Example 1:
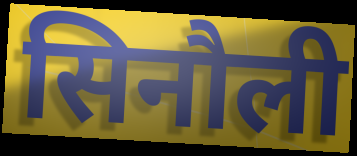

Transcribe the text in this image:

सिनौली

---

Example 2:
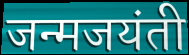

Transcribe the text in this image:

जन्मजयंती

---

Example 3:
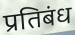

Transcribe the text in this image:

प्रतिबंध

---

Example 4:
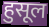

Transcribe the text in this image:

हुसूल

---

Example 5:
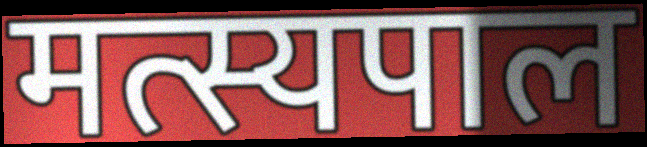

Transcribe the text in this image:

मत्स्यपाल